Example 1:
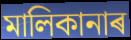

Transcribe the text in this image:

মালিকানাৰ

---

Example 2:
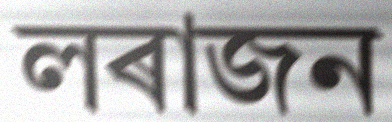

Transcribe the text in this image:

লৰাজন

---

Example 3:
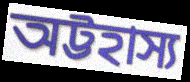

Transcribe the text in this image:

অট্টহাস্য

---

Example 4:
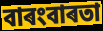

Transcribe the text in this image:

বাৰংবাৰতা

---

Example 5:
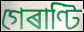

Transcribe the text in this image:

গেৰাণ্টি